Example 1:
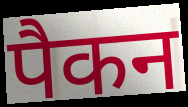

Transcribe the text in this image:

पैकन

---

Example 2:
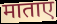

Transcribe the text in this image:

माताए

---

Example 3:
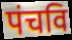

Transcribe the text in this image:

पंचवि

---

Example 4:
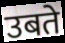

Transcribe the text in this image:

उबते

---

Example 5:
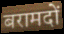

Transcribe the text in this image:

बरामदों